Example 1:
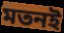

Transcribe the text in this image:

মতনই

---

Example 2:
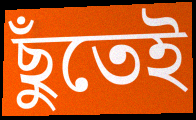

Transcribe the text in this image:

ছুঁতেই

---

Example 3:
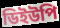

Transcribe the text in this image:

ডিইউপি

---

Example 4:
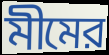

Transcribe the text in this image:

মীমের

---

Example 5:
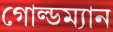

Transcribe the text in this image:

গোল্ডম্যান